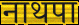
नाथपा